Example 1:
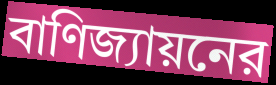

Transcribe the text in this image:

বাণিজ্যায়নের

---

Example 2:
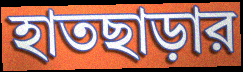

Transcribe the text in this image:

হাতছাড়ার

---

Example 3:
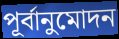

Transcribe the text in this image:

পূর্বানুমোদন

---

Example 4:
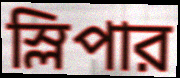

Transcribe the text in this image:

স্লিপার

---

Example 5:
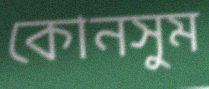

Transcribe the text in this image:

কোনসুম